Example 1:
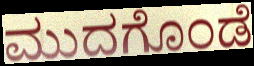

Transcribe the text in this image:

ಮುದಗೊಂಡೆ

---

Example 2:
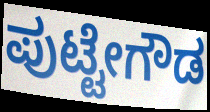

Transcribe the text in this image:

ಪುಟ್ಟೇಗೌಡ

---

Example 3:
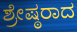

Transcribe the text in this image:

ಶ್ರೇಷ್ಠರಾದ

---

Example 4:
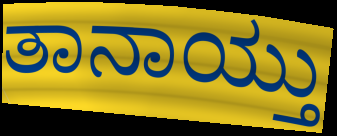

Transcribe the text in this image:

ತಾನಾಯ್ತು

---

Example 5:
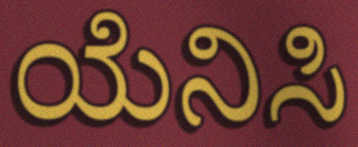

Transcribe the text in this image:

ಯೆನಿಸಿ